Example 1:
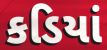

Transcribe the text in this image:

કડિયાં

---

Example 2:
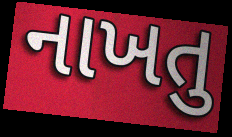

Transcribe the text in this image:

નાખતુ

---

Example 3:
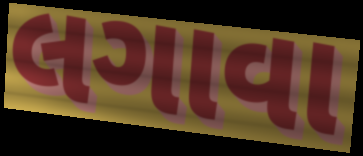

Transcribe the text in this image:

લગાવા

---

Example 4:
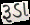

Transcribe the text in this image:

રૂડા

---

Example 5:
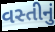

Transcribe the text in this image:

વસ્તીનું